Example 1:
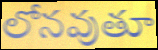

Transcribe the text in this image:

లోనవుతూ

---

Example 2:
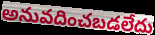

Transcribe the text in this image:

అనువదించబడలేదు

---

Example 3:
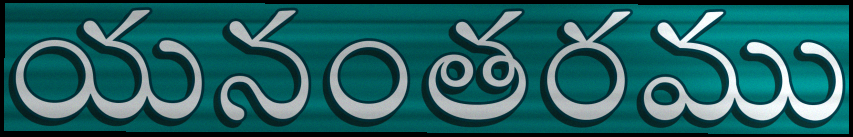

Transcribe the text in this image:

యనంతరము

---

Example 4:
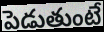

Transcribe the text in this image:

పెడుతుంటే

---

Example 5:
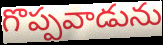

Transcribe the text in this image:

గొప్పవాడును